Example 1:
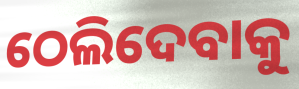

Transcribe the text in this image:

ଠେଲିଦେବାକୁ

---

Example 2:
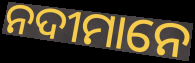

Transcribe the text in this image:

ନଦୀମାନେ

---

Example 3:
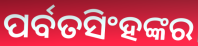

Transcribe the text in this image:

ପର୍ବତସିଂହଙ୍କର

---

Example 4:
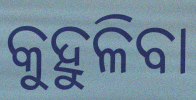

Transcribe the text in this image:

କୁହୁଳିବା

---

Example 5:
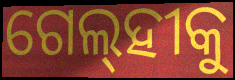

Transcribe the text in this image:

ଗେଲ୍‌ହୀକୁ